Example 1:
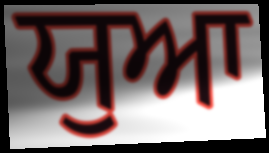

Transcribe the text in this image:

ਯੁਆ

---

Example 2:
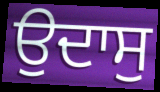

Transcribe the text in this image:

ਉਦਾਸੁ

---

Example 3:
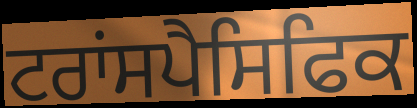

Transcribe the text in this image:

ਟਰਾਂਸਪੈਸਿਫਿਕ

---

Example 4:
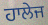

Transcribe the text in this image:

ਹਾਲੇਜ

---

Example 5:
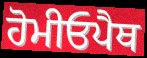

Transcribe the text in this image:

ਹੋਮੀਓਪੈਥ